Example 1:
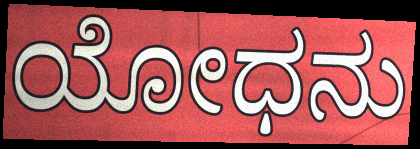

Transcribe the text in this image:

ಯೋಧನು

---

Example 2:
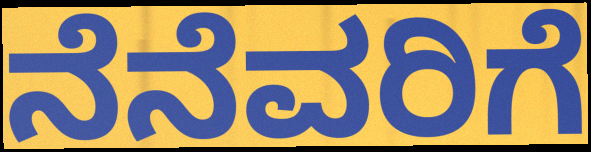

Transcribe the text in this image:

ನೆನೆವರಿಗೆ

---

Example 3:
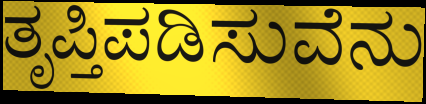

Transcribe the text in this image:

ತೃಪ್ತಿಪಡಿಸುವೆನು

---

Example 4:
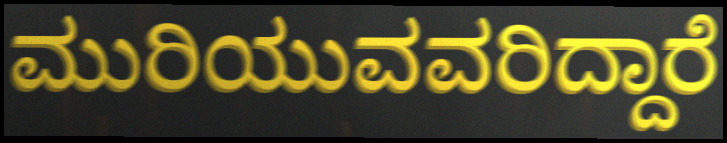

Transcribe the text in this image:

ಮುರಿಯುವವರಿದ್ದಾರೆ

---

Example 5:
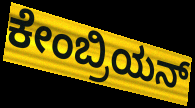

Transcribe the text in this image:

ಕೇಂಬ್ರಿಯನ್